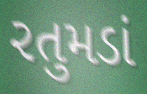
રતુમડાં